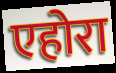
एहोरा